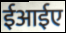
ईआईए